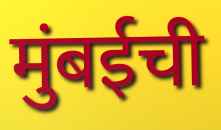
मुंबईची